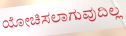
ಯೋಚಿಸಲಾಗುವುದಿಲ್ಲ